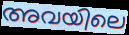
അവയിലെ